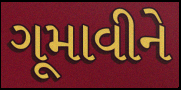
ગૂમાવીને